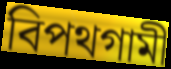
বিপথগামী